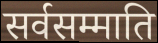
सर्वसम्माति